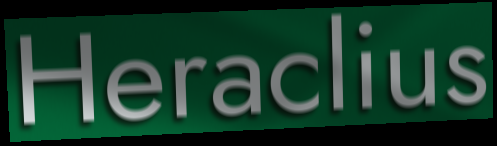
Heraclius